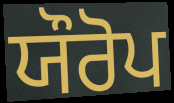
ਯੌਰੋਪ